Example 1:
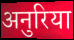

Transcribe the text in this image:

अनुरिया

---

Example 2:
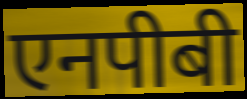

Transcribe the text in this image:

एनपीबी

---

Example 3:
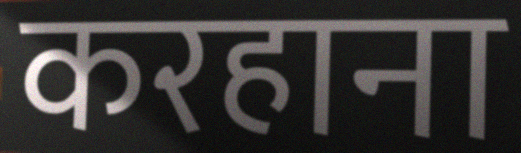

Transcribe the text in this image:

करहाना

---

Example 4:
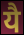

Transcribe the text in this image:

यै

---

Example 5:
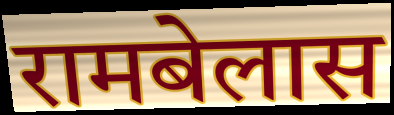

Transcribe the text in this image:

रामबेलास